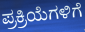
ಪ್ರಕ್ರಿಯೆಗಳಿಗೆ